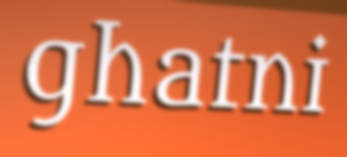
ghatni